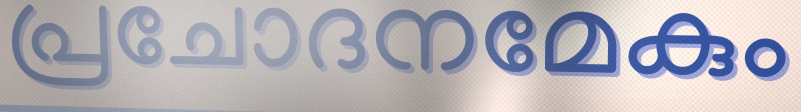
പ്രചോദനമേകും